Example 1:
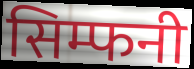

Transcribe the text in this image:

सिम्फनी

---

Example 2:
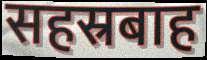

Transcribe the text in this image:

सहस्रबाह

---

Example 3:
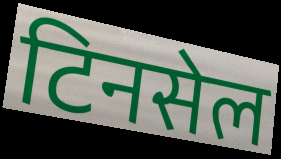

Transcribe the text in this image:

टिनसेल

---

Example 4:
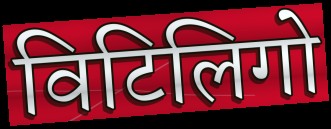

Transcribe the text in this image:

विटिलिगो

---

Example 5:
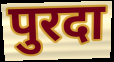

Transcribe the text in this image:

पुरदा